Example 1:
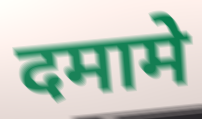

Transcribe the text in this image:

दमामे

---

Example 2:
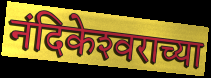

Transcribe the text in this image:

नंदिकेश्वराच्या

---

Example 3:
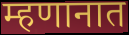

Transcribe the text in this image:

म्हणानात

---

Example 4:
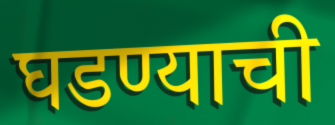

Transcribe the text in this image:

घडण्याची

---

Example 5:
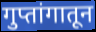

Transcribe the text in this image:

गुप्तांगातून